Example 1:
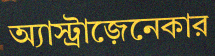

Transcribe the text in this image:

অ্যাস্ট্রাজ়েনেকার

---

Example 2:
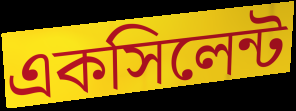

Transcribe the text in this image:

একসিলেন্ট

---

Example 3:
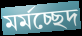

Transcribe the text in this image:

মর্মচ্ছেদ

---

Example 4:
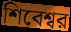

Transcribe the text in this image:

শিবেশ্বর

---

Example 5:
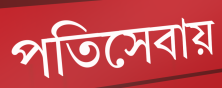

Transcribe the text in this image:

পতিসেবায়